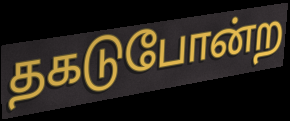
தகடுபோன்ற